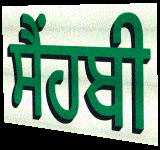
ਸੈਂਹਬੀ